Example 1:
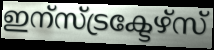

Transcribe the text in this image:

ഇന്സ്ട്രക്ടേഴ്സ്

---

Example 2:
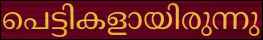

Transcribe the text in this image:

പെട്ടികളായിരുന്നു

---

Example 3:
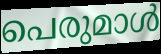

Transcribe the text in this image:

പെരുമാൾ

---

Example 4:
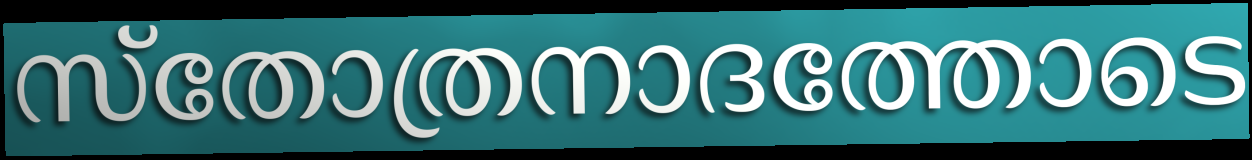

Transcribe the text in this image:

സ്തോത്രനാദത്തോടെ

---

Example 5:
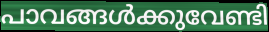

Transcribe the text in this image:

പാവങ്ങൾക്കുവേണ്ടി